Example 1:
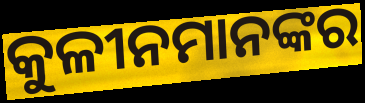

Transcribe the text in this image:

କୁଳୀନମାନଙ୍କର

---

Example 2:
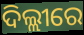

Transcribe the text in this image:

ଦିଲ୍ଲୀରେ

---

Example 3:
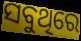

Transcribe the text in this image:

ସବୁଥିରେ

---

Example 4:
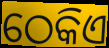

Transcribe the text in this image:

ଠେକିଏ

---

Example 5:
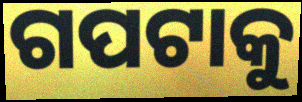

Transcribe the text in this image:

ଗପଟାକୁ